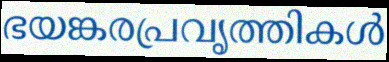
ഭയങ്കരപ്രവൃത്തികൾ